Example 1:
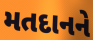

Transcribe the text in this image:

મતદાનને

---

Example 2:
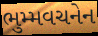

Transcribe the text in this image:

ભુમ્મવચનેન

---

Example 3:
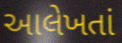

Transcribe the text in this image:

આલેખતાં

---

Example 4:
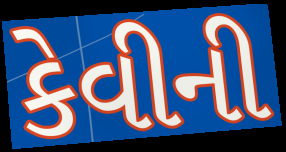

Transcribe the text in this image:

કેવીની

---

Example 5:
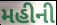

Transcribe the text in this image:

મહીની